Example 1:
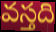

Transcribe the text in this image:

వస్తది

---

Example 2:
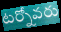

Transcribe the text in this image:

టర్నోవరు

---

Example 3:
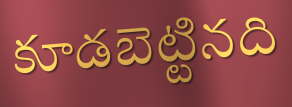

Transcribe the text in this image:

కూడబెట్టినది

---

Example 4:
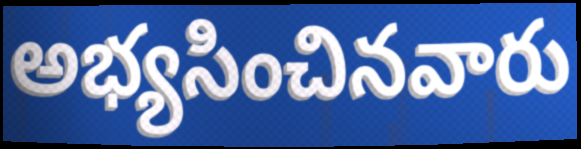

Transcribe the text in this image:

అభ్యసించినవారు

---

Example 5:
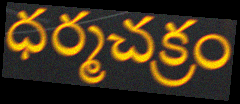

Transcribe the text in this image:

ధర్మచక్రం